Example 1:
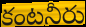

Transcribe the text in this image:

కంటనీరు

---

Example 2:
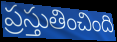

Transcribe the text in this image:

ప్రస్తుతించింది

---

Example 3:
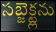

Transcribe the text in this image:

సబ్జెక్ట్లను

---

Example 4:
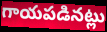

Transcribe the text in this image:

గాయపడినట్లు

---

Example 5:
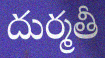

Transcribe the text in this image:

దుర్మతీ